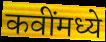
कवींमध्ये